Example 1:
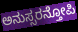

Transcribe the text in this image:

ಅನುಸ್ಸರನ್ತೋಪಿ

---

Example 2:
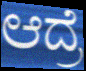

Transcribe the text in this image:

ಆದ್ರೆ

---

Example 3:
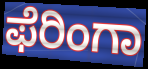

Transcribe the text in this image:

ಫೆರಿಂಗಾ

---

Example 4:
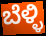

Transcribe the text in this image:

ಬೆಳ್ಳಿ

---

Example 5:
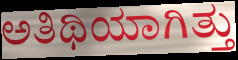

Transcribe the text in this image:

ಅತಿಥಿಯಾಗಿತ್ತು